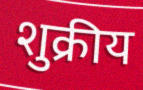
शुक्रीय